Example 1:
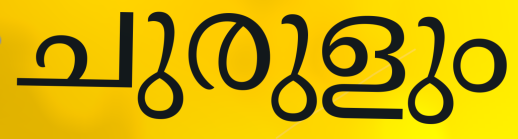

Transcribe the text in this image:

ചുരുളും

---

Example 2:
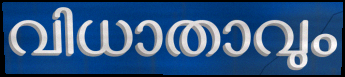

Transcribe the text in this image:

വിധാതാവും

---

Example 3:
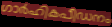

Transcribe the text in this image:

ഗാർഹികപീഡനം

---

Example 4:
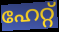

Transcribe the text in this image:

ഹേറ്റ്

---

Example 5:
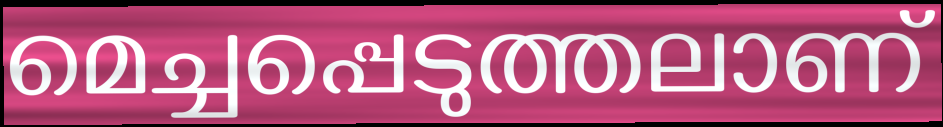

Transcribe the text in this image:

മെച്ചപ്പെടുത്തലാണ്